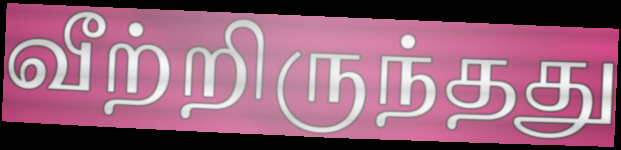
வீற்றிருந்தது